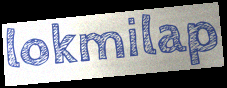
lokmilap